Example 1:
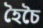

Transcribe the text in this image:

হৈচৈ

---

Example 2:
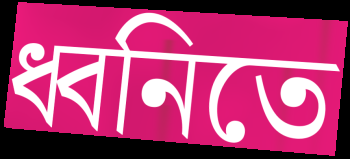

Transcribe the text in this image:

ধ্বনিতে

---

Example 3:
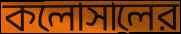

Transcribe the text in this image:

কলোসালের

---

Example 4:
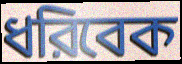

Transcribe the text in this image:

ধরিবেক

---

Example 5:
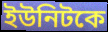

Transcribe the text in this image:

ইউনিটকে